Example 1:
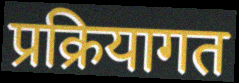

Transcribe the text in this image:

प्रक्रियागत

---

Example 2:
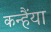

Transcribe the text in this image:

कन्हैंया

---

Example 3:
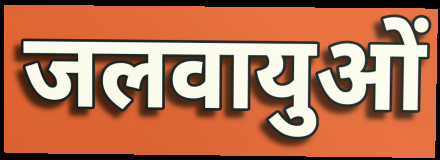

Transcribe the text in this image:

जलवायुओं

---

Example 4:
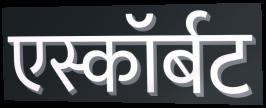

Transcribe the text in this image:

एस्कॉर्बट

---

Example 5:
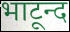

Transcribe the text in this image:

भाटून्द